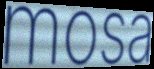
mosa